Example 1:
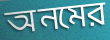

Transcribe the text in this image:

অনমের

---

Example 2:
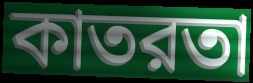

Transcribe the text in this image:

কাতরতা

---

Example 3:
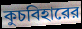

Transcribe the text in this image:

কুচবিহারের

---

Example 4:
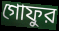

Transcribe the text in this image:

গোফুর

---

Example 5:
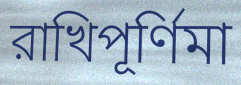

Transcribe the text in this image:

রাখিপূর্ণিমা